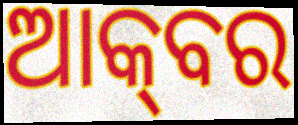
ଆକ୍‌ବର